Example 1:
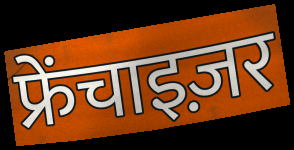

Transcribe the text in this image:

फ्रेंचाइज़र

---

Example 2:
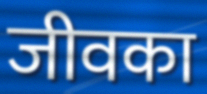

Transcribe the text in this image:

जीवका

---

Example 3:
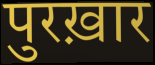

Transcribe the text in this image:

पुरख़ार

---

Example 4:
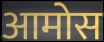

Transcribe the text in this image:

आमोस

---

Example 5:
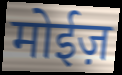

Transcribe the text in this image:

मोईज़